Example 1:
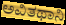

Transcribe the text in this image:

ಅವಿತಥಾನಿ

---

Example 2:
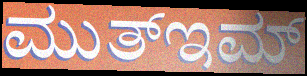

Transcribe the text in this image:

ಮುತ್ಇಮ್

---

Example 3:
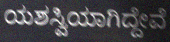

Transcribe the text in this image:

ಯಶಸ್ವಿಯಾಗಿದ್ದೇವೆ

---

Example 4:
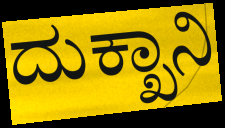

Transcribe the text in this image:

ದುಕ್ಖಾನಿ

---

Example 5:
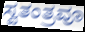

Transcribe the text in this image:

ಸ್ವತಂತ್ರವೂ